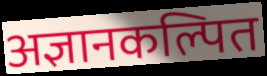
अज्ञानकल्पित